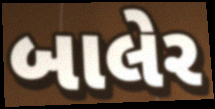
બાલેર